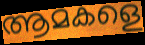
ആമകളെ